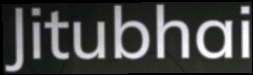
Jitubhai